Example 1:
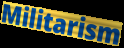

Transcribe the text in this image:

Militarism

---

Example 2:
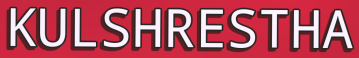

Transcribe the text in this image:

KULSHRESTHA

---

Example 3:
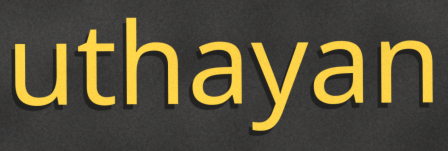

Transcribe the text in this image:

uthayan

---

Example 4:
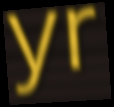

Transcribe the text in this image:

yr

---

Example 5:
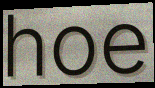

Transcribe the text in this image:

hoe